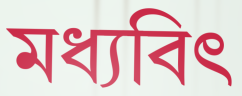
মধ্যবিৎ